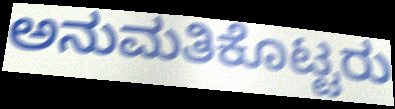
ಅನುಮತಿಕೊಟ್ಟರು